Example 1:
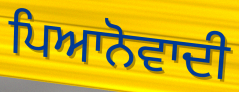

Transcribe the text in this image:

ਪਿਆਨੋਵਾਦੀ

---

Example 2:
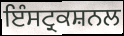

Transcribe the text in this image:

ਇੰਸਟ੍ਰਕਸ਼ਨਲ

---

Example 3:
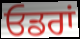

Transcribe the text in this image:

ਓਡਰਾਂ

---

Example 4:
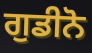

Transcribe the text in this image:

ਗੁਡੀਨੋ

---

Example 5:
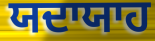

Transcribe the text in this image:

ਯਦਾਯਾਹ